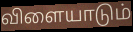
விளையாடும்